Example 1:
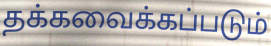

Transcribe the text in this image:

தக்கவைக்கப்படும்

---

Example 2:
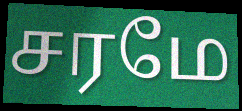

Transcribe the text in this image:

சரமே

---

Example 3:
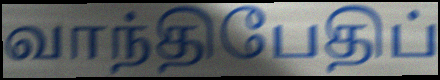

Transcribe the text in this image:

வாந்திபேதிப்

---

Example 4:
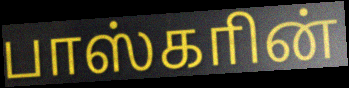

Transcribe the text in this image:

பாஸ்கரின்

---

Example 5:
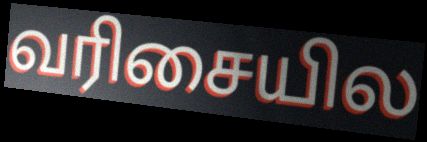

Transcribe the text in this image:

வரிசையில